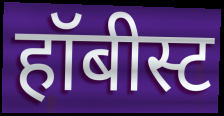
हॉबीस्ट